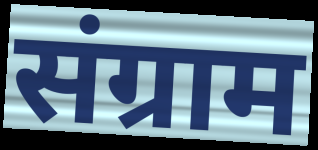
संग्राम